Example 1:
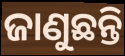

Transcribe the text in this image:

ଜାଣୁଛନ୍ତି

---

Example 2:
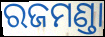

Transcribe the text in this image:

ରଜମଣ୍ଡା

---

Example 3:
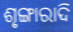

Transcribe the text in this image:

ଶୃଙ୍ଗାରାଦି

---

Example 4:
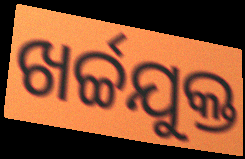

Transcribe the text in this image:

ଖର୍ଚ୍ଚଯୁକ୍ତ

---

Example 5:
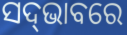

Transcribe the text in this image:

ସଦ୍‌ଭାବରେ